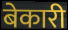
बेकारी